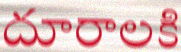
దూరాలకి